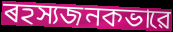
ৰহস্যজনকভাৱে